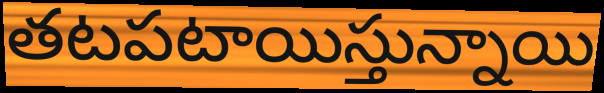
తటపటాయిస్తున్నాయి